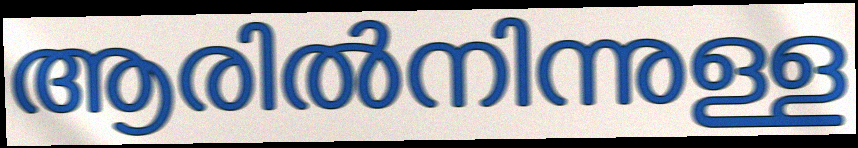
ആരിൽനിന്നുള്ള